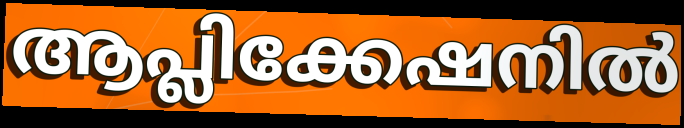
ആപ്ലിക്കേഷനിൽ